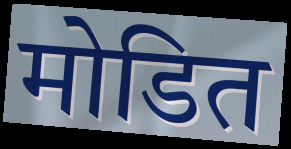
मोडित